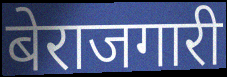
बेराजगारी